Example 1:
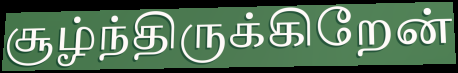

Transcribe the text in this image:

சூழ்ந்திருக்கிறேன்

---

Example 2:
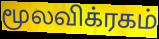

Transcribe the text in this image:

மூலவிக்ரகம்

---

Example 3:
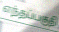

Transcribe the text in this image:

எந்தப்பகுதி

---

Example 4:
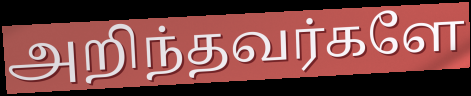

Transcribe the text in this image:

அறிந்தவர்களே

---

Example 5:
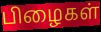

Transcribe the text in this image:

பிழைகள்